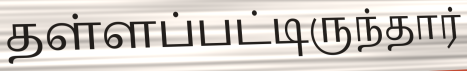
தள்ளப்பட்டிருந்தார்